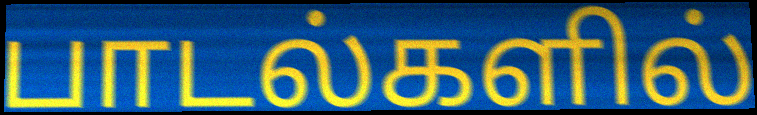
பாடல்களில்